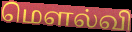
மௌல்வி